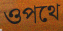
ওপথে